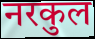
नरकुल